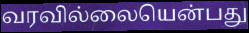
வரவில்லையென்பது